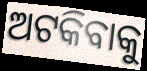
ଅଟକିବାକୁ